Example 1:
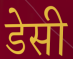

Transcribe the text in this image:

डेसी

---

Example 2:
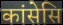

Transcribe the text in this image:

कांसेसि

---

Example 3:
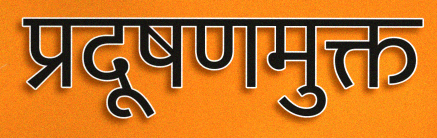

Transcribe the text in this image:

प्रदूषणमुक्त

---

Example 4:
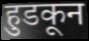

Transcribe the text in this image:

हुडकून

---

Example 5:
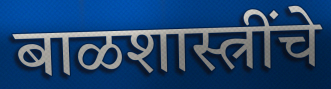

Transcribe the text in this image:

बाळशास्त्रींचे